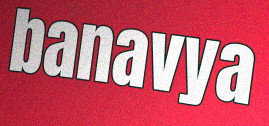
banavya